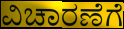
ವಿಚಾರಣೆಗೆ